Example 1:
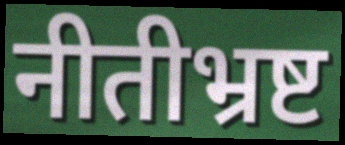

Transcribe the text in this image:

नीतीभ्रष्ट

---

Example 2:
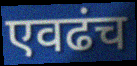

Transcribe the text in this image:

एवढंच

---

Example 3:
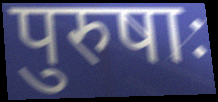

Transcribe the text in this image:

पुरुषाः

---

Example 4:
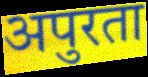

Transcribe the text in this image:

अपुरता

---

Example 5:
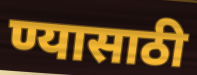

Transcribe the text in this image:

ण्यासाठी